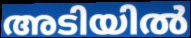
അടിയിൽ